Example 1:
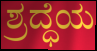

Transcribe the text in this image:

ಶ್ರದ್ಧೆಯ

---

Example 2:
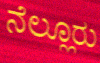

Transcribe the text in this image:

ನೆಲ್ಲೂರು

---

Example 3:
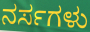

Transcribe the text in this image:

ನರ್ಸಗಳು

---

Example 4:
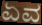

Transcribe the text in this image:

ಏವ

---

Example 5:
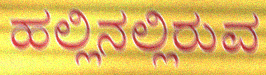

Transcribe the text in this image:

ಹಲ್ಲಿನಲ್ಲಿರುವ